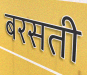
बरसती